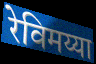
रेविमय्या